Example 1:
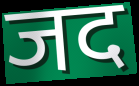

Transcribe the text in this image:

जद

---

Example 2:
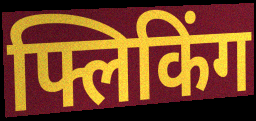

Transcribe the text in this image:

फ्लिकिंग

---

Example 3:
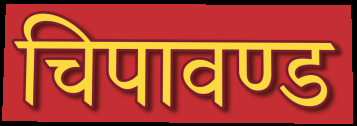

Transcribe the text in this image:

चिपावण्ड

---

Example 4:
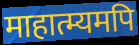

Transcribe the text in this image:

माहात्म्यमपि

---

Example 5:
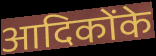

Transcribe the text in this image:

आदिकोंके